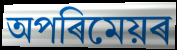
অপৰিমেয়ৰ